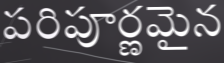
పరిపూర్ణమైన